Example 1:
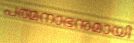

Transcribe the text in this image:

പത്മനാഭനുമായി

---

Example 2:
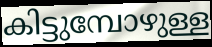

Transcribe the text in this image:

കിട്ടുമ്പോഴുള്ള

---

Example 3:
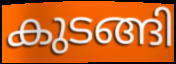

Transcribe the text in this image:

കുടങ്ങി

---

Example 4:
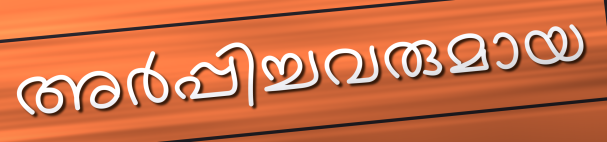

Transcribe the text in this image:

അർപ്പിച്ചവരുമായ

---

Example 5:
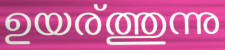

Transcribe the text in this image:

ഉയര്ത്തുന്നു